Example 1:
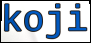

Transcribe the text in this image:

koji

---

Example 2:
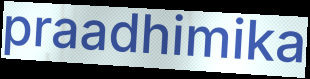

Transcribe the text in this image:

praadhimika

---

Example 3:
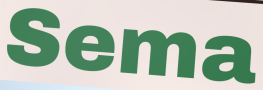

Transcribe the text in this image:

Sema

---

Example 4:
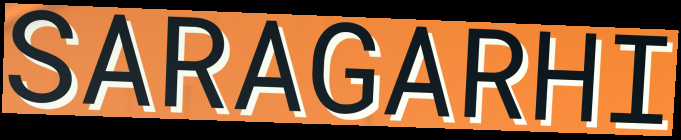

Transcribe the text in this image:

SARAGARHI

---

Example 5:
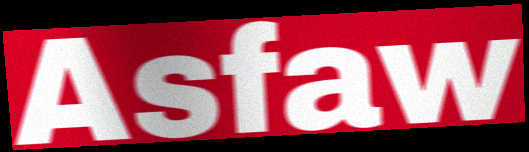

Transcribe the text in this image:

Asfaw